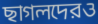
ছাগলদেরও